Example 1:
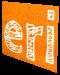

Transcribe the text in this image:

eri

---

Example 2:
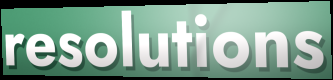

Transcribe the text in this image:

resolutions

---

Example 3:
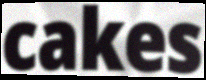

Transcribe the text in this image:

cakes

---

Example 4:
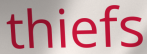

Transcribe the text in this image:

thiefs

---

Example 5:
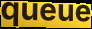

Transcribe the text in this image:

queue